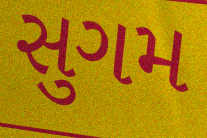
સુગમ